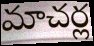
మాచర్ల